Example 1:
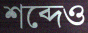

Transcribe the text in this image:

শব্দেও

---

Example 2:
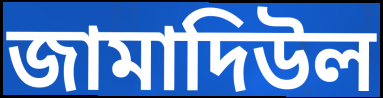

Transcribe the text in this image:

জামাদিউল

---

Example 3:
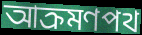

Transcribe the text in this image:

আক্রমণপথ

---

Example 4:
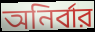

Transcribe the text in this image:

অনির্বার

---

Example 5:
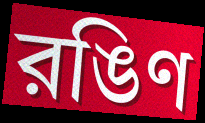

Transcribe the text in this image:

রঙিণ